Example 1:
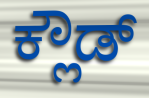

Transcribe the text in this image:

ಕ್ಲೌಡ್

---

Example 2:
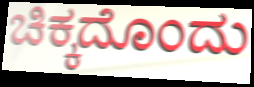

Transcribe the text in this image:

ಚಿಕ್ಕದೊಂದು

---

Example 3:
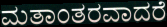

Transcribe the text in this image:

ಮತಾಂತರವಾದರೆ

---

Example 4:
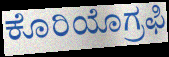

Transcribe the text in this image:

ಕೊರಿಯೊಗ್ರಫಿ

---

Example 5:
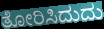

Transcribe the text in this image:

ತೋರಿಸಿದುದು